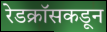
रेडक्रॉसकडून